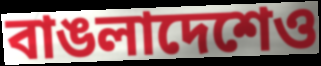
বাঙলাদেশেও